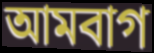
আমবাগ